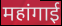
महांगाई